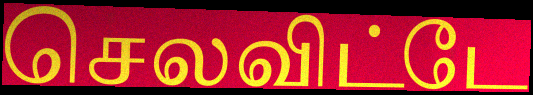
செலவிட்டே